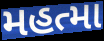
મહત્મા